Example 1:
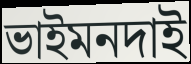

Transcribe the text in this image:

ভাইমনদাই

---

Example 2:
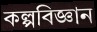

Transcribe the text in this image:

কল্পবিজ্ঞান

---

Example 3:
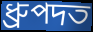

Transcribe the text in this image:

ধ্ৰুপদত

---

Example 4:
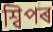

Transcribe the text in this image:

শ্বিপৰ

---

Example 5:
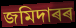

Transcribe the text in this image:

জমিদাৰৰ